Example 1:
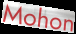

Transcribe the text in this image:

Mohon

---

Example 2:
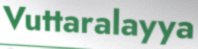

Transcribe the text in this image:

Vuttaralayya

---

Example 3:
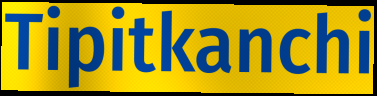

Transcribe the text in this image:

Tipitkanchi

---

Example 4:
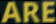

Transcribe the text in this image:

ARE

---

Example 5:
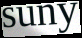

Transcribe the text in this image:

suny